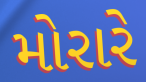
મોરારે